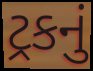
ટ્રકનું